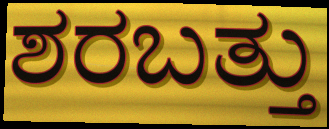
ಶರಬತ್ತು